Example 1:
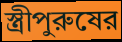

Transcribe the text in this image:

স্ত্রীপুরুষের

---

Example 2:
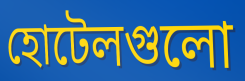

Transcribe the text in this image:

হোটেলগুলো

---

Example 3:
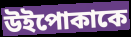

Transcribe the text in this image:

উইপোকাকে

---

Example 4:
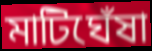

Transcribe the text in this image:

মাটিঘেঁষা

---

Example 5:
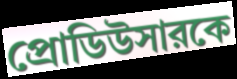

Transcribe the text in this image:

প্রোডিউসারকে